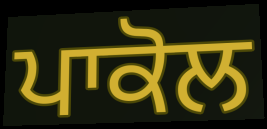
ਪਾਕੋਲ